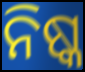
ନିଷ୍କ